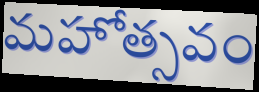
మహోత్సవం